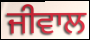
ਜੀਵਾਲ